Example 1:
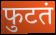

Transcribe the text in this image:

फुटतं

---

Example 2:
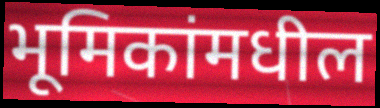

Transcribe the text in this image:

भूमिकांमधील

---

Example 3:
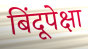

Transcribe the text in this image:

बिंदूपेक्षा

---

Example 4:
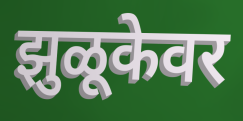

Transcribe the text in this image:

झुळूकेवर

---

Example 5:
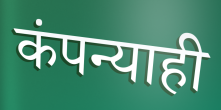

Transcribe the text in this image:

कंपन्याही